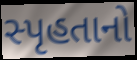
સ્પૃહતાનો